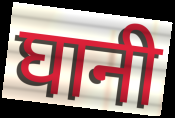
घानी